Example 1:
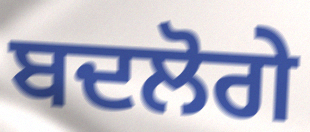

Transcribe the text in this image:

ਬਦਲੋਗੇ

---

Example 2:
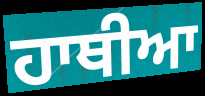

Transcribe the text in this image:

ਹਾਥੀਆ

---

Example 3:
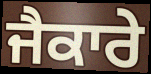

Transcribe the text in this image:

ਜੈਕਾਰੇ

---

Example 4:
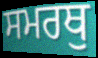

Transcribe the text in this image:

ਸਮਰਥੁ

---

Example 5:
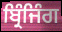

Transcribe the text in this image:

ਬ੍ਰਿੰਜਿੰਗ